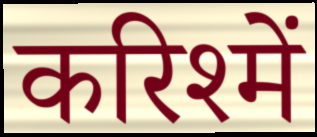
करिश्में